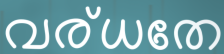
വര്ധതേ